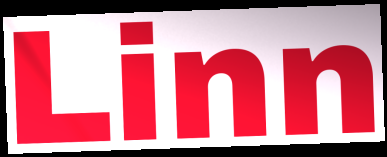
Linn